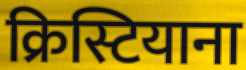
क्रिस्टियाना